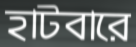
হাটবারে